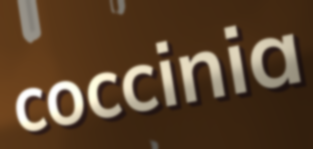
coccinia